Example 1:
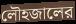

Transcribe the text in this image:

লৌহজালের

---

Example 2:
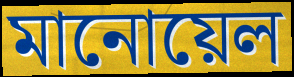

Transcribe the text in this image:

মানোয়েল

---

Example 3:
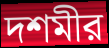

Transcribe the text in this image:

দশমীর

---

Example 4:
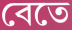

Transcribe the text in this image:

বেতে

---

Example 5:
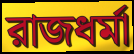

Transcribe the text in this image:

রাজধর্মা